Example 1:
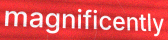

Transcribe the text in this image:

magnificently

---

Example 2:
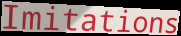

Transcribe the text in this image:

Imitations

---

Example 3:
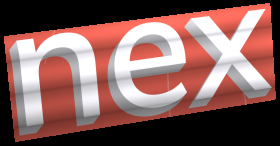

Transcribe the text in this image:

nex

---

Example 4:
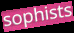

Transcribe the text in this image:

sophists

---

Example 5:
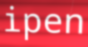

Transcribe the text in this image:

ipen